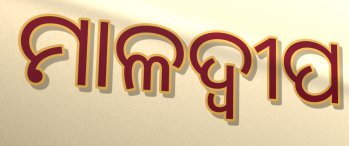
ମାଳଦ୍ବୀପ